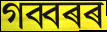
গব্বৰৰ